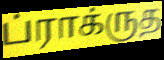
ப்ராக்ருத